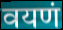
वयणं